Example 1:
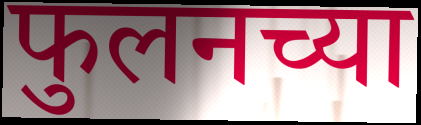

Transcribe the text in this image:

फुलनच्या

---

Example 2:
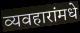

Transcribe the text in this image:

व्यवहारांमधे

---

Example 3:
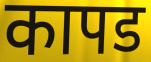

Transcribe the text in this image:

कापड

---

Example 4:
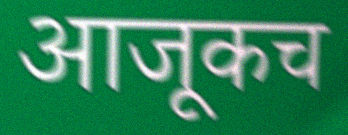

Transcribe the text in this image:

आजूकच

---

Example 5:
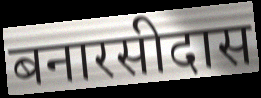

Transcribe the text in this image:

बनारसीदास